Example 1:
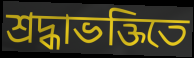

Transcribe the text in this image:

শ্রদ্ধাভক্তিতে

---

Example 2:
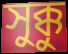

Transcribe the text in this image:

সুক্কু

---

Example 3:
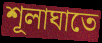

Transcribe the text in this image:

শূলাঘাতে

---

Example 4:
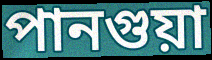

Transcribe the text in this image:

পানগুয়া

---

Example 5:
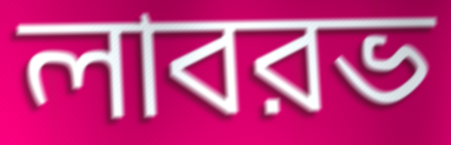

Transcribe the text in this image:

লাবরভ